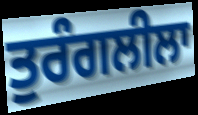
ਤੁਰੰਗਲੀਲਾ